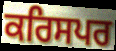
ਕਰਿਸਪਰ